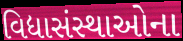
વિદ્યાસંસ્થાઓના